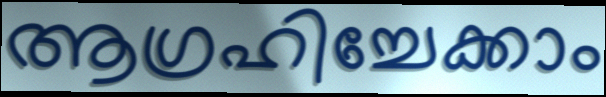
ആഗ്രഹിച്ചേക്കാം